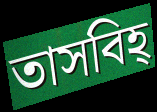
তাসবিহ্